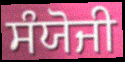
ਸੰਯੋਜੀ